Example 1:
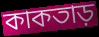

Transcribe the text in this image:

কাকতাড়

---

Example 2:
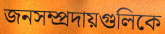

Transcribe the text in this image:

জনসম্প্রদায়গুলিকে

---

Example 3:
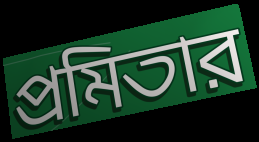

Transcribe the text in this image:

প্রমিতার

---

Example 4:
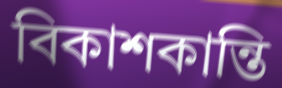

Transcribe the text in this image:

বিকাশকান্তি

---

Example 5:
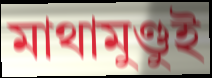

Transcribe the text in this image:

মাথামুণ্ডুই